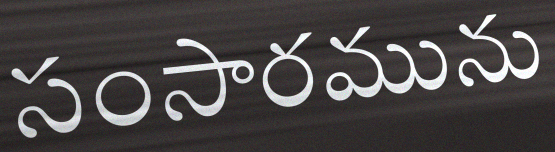
సంసారమును